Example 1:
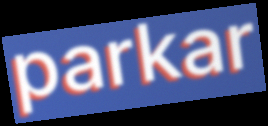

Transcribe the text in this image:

parkar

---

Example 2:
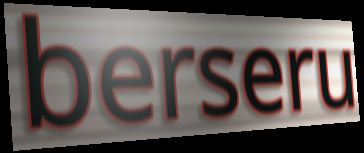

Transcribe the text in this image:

berseru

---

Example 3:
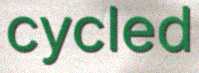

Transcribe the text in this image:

cycled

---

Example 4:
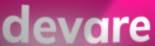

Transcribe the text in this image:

devare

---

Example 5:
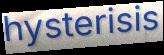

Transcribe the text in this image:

hysterisis